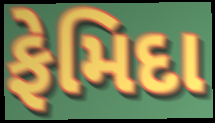
ફેમિદા